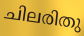
ചിലരിതു